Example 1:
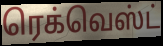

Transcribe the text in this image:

ரெக்வெஸ்ட்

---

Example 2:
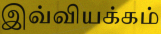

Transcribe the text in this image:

இவ்வியக்கம்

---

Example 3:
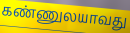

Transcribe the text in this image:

கண்ணுலயாவது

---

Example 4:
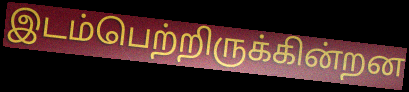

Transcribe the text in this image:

இடம்பெற்றிருக்கின்றன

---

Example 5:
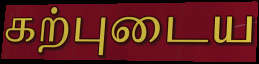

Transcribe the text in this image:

கற்புடைய